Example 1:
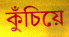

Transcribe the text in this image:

কুঁচিয়ে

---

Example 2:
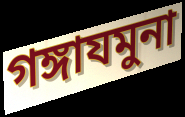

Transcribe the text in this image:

গঙ্গাযমুনা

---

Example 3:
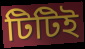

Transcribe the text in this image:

টিটিই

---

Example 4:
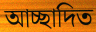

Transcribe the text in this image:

আচ্ছাদিত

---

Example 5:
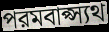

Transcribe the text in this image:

পরমবাপ্স্যথ